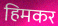
हिमकर